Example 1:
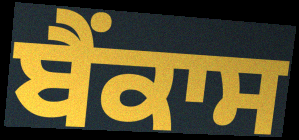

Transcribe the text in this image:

ਬੈਂਕਾਸ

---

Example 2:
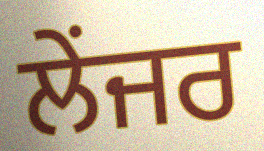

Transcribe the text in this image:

ਲੇਂਜਰ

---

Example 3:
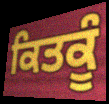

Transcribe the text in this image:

ਕਿਤਕੂੰ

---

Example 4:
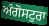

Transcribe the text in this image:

ਅੰਗੋਸਟੁਰਾ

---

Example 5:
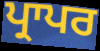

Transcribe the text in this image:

ਪ੍ਰਾਪਰ